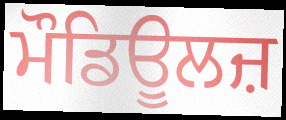
ਮੌਡਿਊਲਜ਼